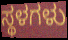
ಸ್ಥಳಗಳು